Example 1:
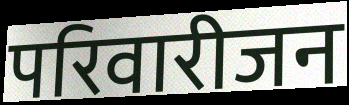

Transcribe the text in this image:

परिवारीजन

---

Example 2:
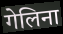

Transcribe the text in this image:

गेलिना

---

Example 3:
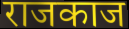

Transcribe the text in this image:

राजकाज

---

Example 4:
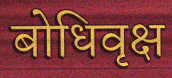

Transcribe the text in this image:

बोधिवृक्ष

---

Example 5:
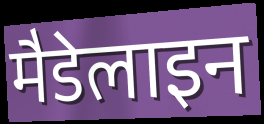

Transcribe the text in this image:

मैडेलाइन